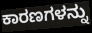
ಕಾರಣಗಳನ್ನು